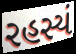
રહસ્યં